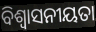
ବିଶ୍ୱାସନୀୟତା